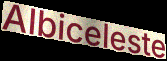
Albiceleste